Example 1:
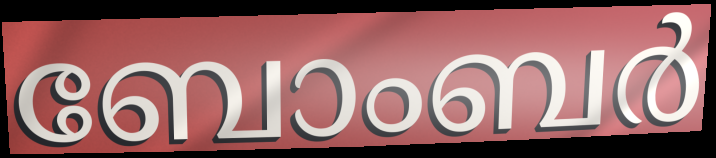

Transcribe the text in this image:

ബോംബർ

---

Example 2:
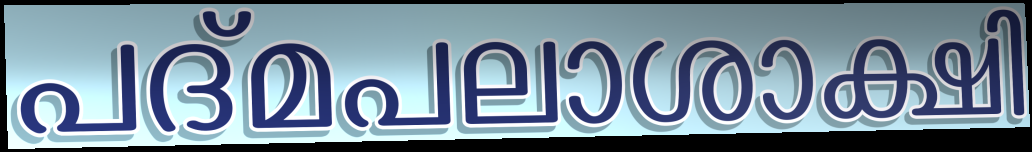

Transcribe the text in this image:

പദ്മപലാശാക്ഷി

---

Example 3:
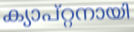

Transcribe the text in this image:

ക്യാപ്റ്റനായി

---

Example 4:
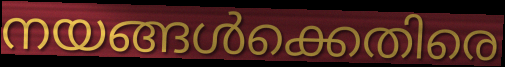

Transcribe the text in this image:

നയങ്ങൾക്കെതിരെ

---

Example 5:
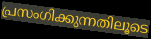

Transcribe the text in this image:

പ്രസംഗിക്കുന്നതിലൂടെ